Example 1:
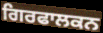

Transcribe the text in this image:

ਗਿਰਫਾਲਕਨ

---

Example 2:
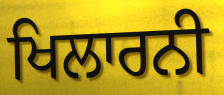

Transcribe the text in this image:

ਖਿਲਾਰਨੀ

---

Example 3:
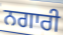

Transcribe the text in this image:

ਨਗਾਰੀ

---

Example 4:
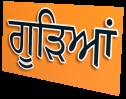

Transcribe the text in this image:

ਗੂੜਿਆਂ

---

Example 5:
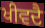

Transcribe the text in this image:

ਖੀਵਦੈ